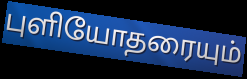
புளியோதரையும்